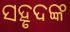
ସହୃଦଙ୍କ